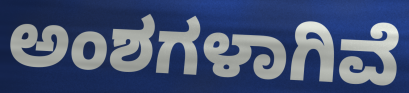
ಅಂಶಗಳಾಗಿವೆ